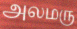
அலமரு